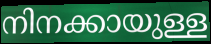
നിനക്കായുള്ള